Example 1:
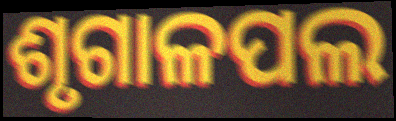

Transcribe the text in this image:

ଶୃଗାଳପଲ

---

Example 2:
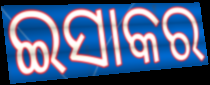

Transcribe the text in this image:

ଇସାକର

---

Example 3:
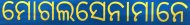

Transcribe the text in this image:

ମୋଗଲସେନାମାନେ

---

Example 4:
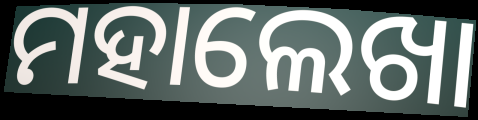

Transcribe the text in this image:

ମହାଲେଖା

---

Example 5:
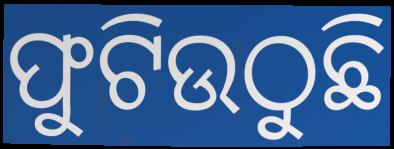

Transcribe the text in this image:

ଫୁଟିଉଠୁଛି